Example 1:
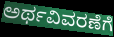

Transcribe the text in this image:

ಅರ್ಥವಿವರಣೆಗೆ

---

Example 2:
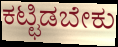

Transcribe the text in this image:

ಕಟ್ಟಿಡಬೇಕು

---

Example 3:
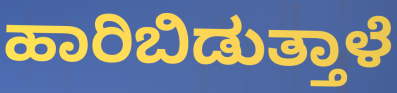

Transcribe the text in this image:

ಹಾರಿಬಿಡುತ್ತಾಳೆ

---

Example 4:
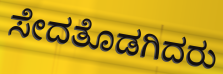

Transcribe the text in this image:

ಸೇದತೊಡಗಿದರು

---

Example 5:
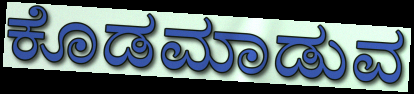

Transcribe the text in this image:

ಕೊಡಮಾಡುವ